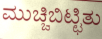
ಮುಚ್ಚಿಬಿಟ್ಟಿತು